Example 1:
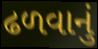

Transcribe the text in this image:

ઢળવાનું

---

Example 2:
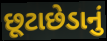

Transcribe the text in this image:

છૂટાછેડાનું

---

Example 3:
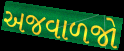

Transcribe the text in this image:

અજવાળજો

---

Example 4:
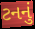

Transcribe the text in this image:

ટનનું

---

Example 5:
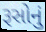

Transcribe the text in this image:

રૂસોનું